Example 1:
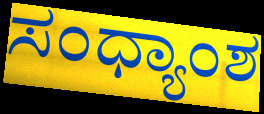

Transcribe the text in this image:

ಸಂಧ್ಯಾಂಶ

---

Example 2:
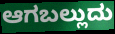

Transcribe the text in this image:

ಆಗಬಲ್ಲುದು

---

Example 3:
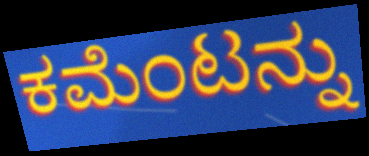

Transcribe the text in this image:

ಕಮೆಂಟನ್ನು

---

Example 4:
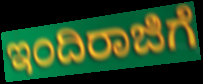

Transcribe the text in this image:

ಇಂದಿರಾಜಿಗೆ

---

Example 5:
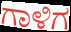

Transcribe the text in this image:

ಗಾಳಿಗ